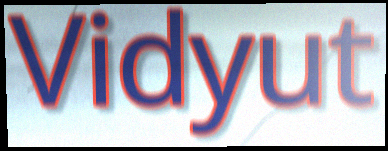
Vidyut